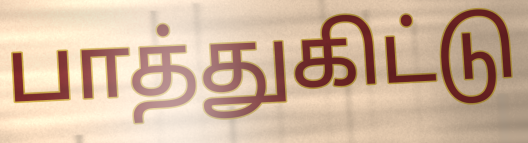
பாத்துகிட்டு